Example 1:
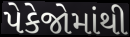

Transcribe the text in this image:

પેકેજોમાંથી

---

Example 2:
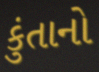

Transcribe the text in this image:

કુંતાનો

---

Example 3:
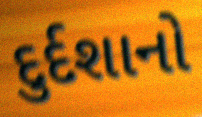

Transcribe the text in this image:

દુર્દશાનો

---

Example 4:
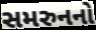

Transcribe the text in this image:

સમરુનનો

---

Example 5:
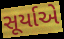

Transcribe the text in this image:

સૂર્યાએ